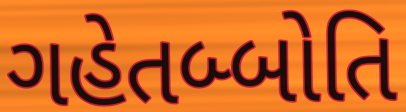
ગહેતબ્બોતિ